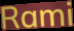
Rami